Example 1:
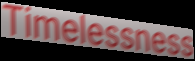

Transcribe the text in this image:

Timelessness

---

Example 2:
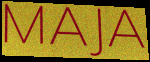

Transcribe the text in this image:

MAJA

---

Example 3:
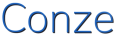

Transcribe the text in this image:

Conze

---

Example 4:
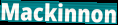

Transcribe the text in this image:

Mackinnon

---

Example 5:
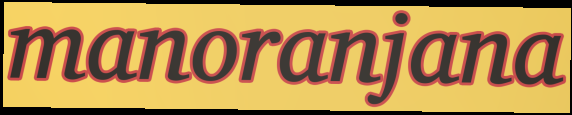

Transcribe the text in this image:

manoranjana